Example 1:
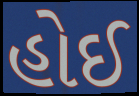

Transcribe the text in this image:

હોઈ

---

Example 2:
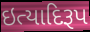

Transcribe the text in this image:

ઇત્યાદિરૂપ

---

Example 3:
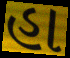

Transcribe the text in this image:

હા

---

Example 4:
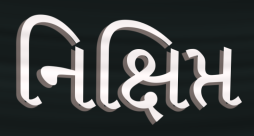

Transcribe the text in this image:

નિક્ષિપ્ત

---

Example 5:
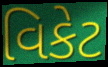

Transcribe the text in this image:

વિકેટ